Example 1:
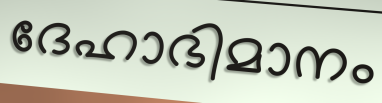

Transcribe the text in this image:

ദേഹാഭിമാനം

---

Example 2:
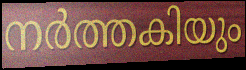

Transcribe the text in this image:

നർത്തകിയും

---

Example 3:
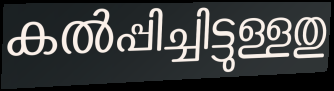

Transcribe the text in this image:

കൽപ്പിച്ചിട്ടുള്ളതു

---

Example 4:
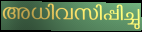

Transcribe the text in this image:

അധിവസിപ്പിച്ചു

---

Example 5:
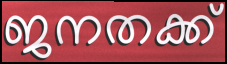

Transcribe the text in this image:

ജനതക്ക്